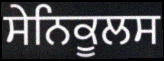
ਸੇਨਿਕੂਲਸ